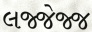
લજ્જેજ્જ